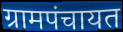
ग्रामपंचायत